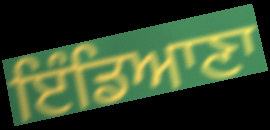
ਇੰਡਿਆਣਾ